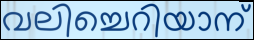
വലിച്ചെറിയാന്